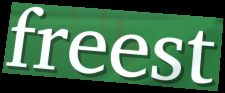
freest